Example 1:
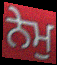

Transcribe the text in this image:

ਨੇਮੁ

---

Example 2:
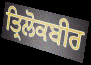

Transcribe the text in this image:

ਤ੍ਰਿਲੋਕਬੀਰ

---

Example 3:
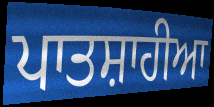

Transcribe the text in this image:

ਪਾਤਸ਼ਾਹੀਆ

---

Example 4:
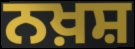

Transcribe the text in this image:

ਨਖ਼ਸ਼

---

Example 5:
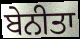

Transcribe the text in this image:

ਬੇਨੀਤਾ